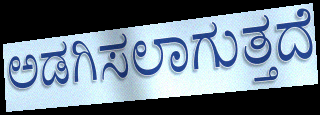
ಅಡಗಿಸಲಾಗುತ್ತದೆ